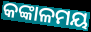
କଙ୍କାଳମୟ